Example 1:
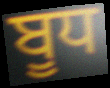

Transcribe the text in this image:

ਬੂਧ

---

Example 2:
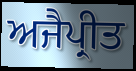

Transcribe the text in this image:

ਅਜੈਪ੍ਰੀਤ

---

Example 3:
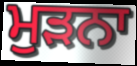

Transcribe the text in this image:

ਮੁੜਨਾ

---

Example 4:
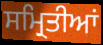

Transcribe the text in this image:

ਸਮ੍ਰਿਤੀਆਂ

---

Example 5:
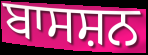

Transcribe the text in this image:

ਬਾਸਸ਼ਨ